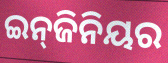
ଇନ୍‌ଜିନିୟର